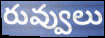
రువ్వులు